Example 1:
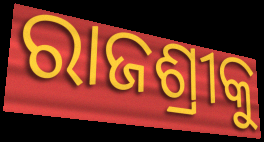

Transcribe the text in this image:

ରାଜଶ୍ରୀକୁ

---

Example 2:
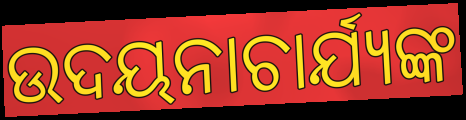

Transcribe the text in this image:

ଉଦୟନାଚାର୍ଯ୍ୟଙ୍କ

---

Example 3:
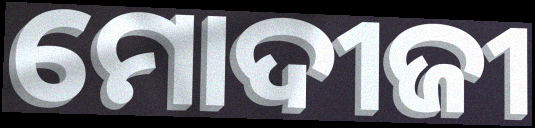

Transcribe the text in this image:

ମୋଦୀଜୀ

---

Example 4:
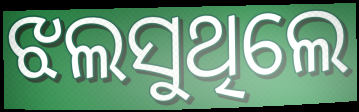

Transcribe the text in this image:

ଝଲସୁଥିଲେ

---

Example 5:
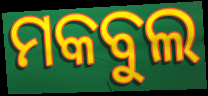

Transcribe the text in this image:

ମକବୁଲ